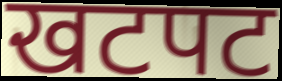
खटपट